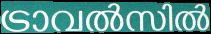
ട്രാവൽസിൽ